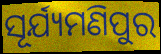
ସୂର୍ଯ୍ୟମଣିପୁର